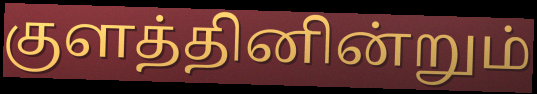
குளத்தினின்றும்